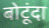
बोटूंदा